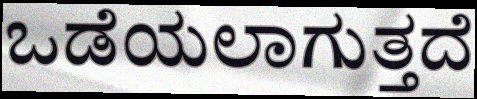
ಒಡೆಯಲಾಗುತ್ತದೆ